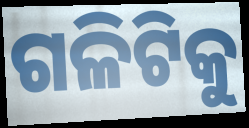
ଗଳିଟିକୁ